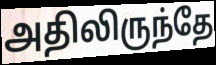
அதிலிருந்தே